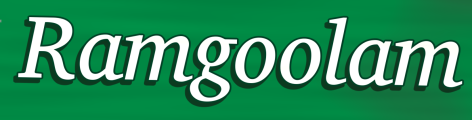
Ramgoolam